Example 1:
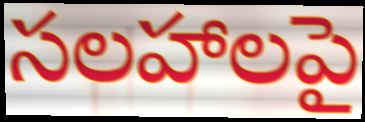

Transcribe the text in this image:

సలహాలపై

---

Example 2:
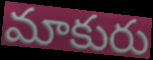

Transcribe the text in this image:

మాకురు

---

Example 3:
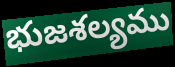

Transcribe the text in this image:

భుజశల్యము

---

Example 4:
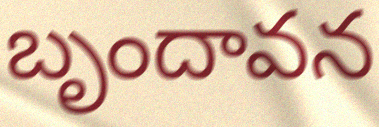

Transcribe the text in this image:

బృందావన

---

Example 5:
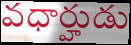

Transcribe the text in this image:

వధార్హుడు